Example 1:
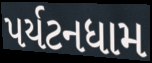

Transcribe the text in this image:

પર્યટનધામ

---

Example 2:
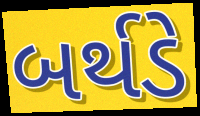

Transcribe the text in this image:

બર્થડે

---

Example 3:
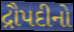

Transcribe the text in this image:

દ્રૌપદીનો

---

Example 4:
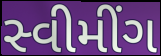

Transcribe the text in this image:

સ્વીમીંગ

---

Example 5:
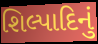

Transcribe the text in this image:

શિલ્પાદિનું